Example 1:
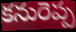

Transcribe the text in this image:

కనురెప్ప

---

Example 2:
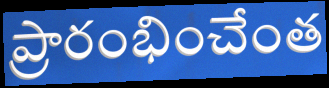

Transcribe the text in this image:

ప్రారంభించేంత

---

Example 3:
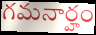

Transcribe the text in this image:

గమనార్హం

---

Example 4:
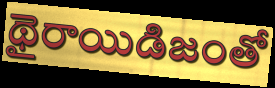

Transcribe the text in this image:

థైరాయిడిజంతో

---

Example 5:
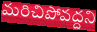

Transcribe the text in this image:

మరిచిపోవద్దని